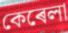
কেৰেলা